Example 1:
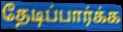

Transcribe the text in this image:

தேடிப்பார்க்க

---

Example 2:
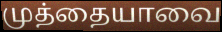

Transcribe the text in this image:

முத்தையாவை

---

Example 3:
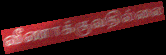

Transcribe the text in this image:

வீணாக்குவதில்லை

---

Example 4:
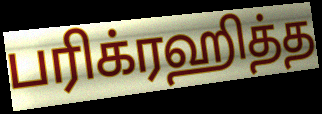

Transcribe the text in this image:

பரிக்ரஹித்த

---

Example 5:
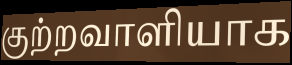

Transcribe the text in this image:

குற்றவாளியாக